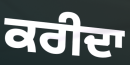
ਕਰੀਦਾ